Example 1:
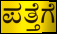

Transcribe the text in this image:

ಪತ್ತೆಗೆ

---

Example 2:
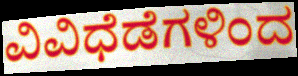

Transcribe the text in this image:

ವಿವಿಧೆಡೆಗಳಿಂದ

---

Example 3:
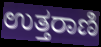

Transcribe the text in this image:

ಉತ್ತರಾಣಿ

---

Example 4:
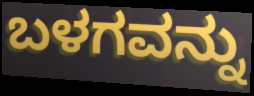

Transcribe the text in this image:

ಬಳಗವನ್ನು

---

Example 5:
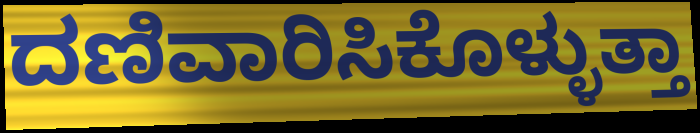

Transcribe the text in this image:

ದಣಿವಾರಿಸಿಕೊಳ್ಳುತ್ತಾ